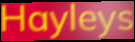
Hayleys